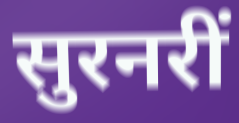
सुरनरीं